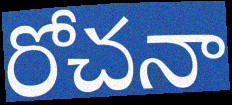
రోచనా